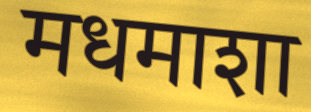
मधमाशा